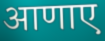
आणाए